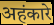
अहंकारे